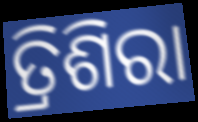
ତ୍ରିଶିରା